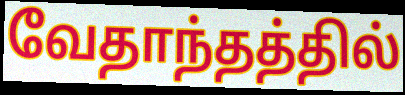
வேதாந்தத்தில்